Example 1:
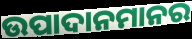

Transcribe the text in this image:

ଉପାଦାନମାନର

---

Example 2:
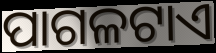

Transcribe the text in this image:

ପାଗଳଟାଏ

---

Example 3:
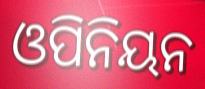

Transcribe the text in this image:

ଓପିନିୟନ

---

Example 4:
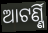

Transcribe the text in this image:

ଆଟର୍ଣ୍ଣି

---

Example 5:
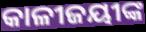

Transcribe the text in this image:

କାଳୀଜୟୀଙ୍କ